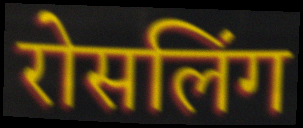
रोसलिंग